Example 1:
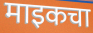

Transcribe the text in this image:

माइकचा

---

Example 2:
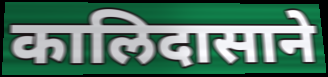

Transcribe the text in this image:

कालिदासाने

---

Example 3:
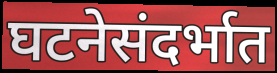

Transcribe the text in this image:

घटनेसंदर्भात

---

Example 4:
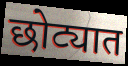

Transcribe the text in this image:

छोट्यात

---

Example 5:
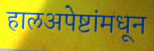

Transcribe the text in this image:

हालअपेष्टांमधून